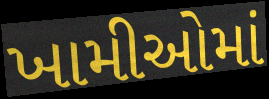
ખામીઓમાં